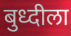
बुध्दीला